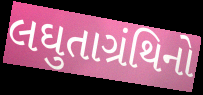
લઘુતાગ્રંથિનો